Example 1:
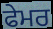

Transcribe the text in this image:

ਫੇਮਰ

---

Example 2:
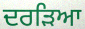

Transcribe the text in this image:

ਦਰੜਿਆ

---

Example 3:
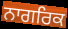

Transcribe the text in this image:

ਨਾਗਰਿਕ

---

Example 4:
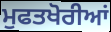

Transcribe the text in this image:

ਮੁਫਤਖੋਰੀਆਂ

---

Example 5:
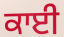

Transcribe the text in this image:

ਕਾਈ